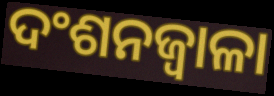
ଦଂଶନଜ୍ୱାଳା